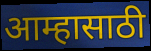
आम्हासाठी